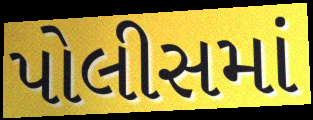
પોલીસમાં